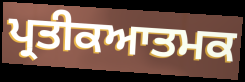
ਪ੍ਰਤੀਕਆਤਮਕ